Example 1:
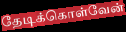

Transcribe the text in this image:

தேடிக்கொள்வேன்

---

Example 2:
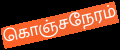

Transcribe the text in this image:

கொஞ்சநேரம்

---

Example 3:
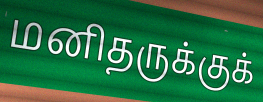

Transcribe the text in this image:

மனிதருக்குக்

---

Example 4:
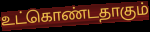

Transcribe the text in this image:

உட்கொண்டதாகும்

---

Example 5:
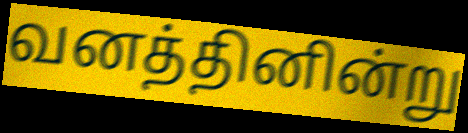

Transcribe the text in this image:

வனத்தினின்று